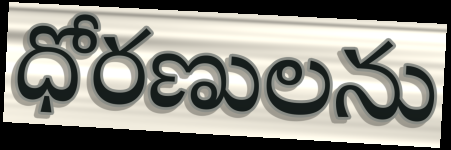
ధోరణులను